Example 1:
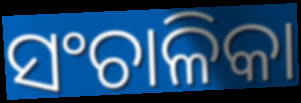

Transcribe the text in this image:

ସଂଚାଳିକା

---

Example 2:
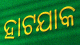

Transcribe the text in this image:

ହାଟଯାକ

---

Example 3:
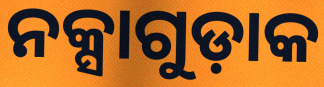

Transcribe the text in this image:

ନକ୍ସାଗୁଡ଼ାକ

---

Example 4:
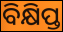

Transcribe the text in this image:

ବିକ୍ଷିପ୍ତ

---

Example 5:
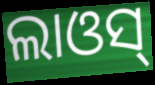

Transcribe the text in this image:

ଲାଓସ୍